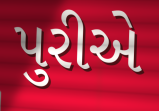
પુરીએ